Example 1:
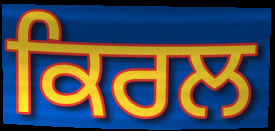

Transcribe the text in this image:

ਕਿਰਲ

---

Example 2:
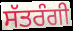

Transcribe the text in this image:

ਸੱਤਰੰਗੀ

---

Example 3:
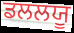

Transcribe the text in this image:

ਡਲਲਯੂ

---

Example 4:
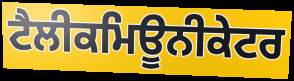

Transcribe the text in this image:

ਟੈਲੀਕਮਿਊਨੀਕੇਟਰ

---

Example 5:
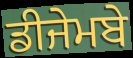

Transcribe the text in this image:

ਡੀਜੇਮਬੇ